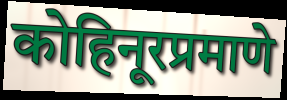
कोहिनूरप्रमाणे